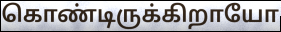
கொண்டிருக்கிறாயோ